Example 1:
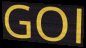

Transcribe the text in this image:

GOI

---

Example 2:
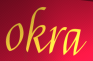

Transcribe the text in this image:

okra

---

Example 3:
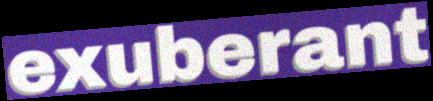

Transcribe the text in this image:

exuberant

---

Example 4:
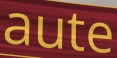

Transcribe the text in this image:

aute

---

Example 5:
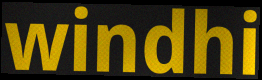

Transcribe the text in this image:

windhi